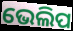
ଭେଲିପ